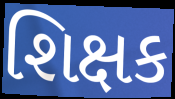
શિક્ષક